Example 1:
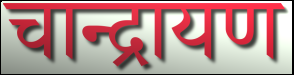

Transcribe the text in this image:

चान्द्रायण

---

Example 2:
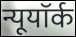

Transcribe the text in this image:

न्यूयॉर्क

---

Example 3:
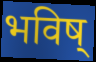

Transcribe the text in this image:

भविष्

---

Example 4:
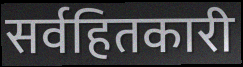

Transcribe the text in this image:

सर्वहितकारी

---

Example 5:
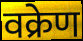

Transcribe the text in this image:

वक्रेण